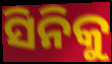
ସିନିକୁ